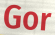
Gor